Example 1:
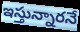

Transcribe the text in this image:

ఇస్తున్నారనే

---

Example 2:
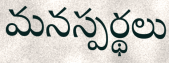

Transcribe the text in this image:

మనస్పర్థలు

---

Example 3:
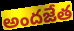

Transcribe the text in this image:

అందజేత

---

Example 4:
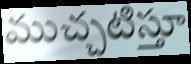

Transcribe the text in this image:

ముచ్చటిస్తూ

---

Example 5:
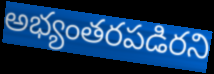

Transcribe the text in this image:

అభ్యంతరపడిరని